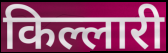
किल्लारी